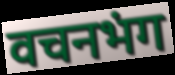
वचनभंग